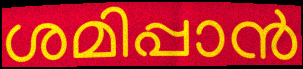
ശമിപ്പാൻ